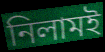
নিলামই